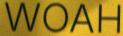
WOAH